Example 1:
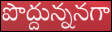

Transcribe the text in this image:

పొద్దున్ననగా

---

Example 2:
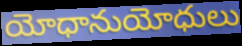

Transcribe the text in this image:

యోధానుయోధులు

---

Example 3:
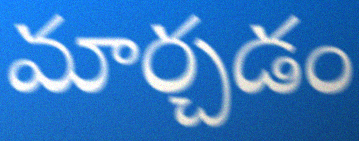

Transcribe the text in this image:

మార్చడం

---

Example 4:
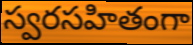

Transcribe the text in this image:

స్వరసహితంగా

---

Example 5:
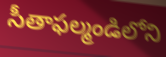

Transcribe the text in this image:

సీతాఫల్మండిలోని